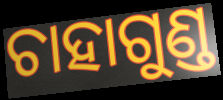
ଚାହାଗୁଣ୍ଡ